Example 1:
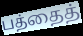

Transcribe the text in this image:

பத்தைத்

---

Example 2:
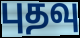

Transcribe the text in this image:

புதவு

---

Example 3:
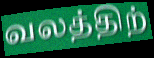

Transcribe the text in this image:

வலத்திற்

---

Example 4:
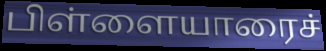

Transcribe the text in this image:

பிள்ளையாரைச்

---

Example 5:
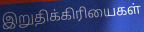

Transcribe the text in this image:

இறுதிக்கிரியைகள்